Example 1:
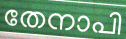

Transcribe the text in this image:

തേനാപി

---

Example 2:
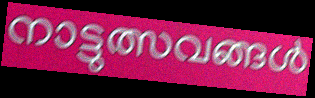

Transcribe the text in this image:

നാട്ടുത്സവങ്ങൾ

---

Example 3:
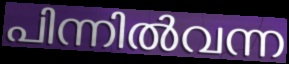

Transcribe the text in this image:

പിന്നിൽവന്ന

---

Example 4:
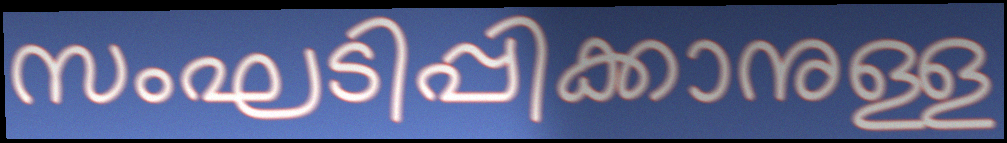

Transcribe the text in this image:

സംഘടിപ്പിക്കാനുള്ള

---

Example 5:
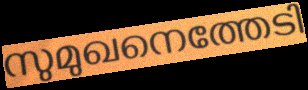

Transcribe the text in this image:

സുമുഖനെത്തേടി